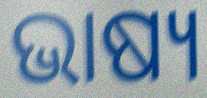
ଭାଷ୍ୟ